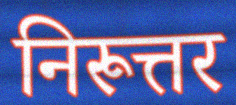
निरूत्तर